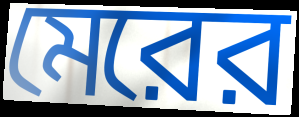
মেরের